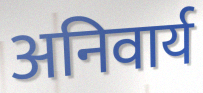
अनिवार्य